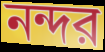
নন্দর